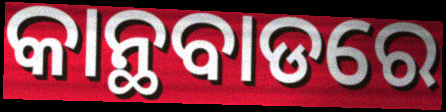
କାନ୍ଥବାଡରେ